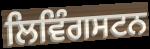
ਲਿਵਿੰਗਸਟਨ